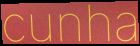
cunha